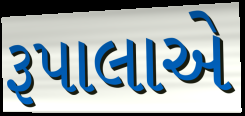
રૂપાલાએ